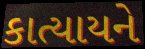
કાત્યાયને